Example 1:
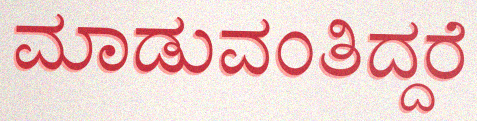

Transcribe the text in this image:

ಮಾಡುವಂತಿದ್ದರೆ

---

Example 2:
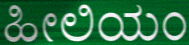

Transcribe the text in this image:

ಹೀಲಿಯಂ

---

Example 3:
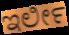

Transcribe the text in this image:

ಇರ್ಲೀ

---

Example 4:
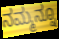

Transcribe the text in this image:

ನಮ್ಮನ್ನೂ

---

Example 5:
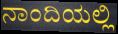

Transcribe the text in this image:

ನಾಂದಿಯಲ್ಲಿ